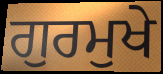
ਗੁਰਮੁਖੇ